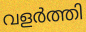
വളർത്തി